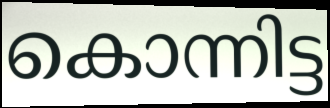
കൊന്നിട്ട